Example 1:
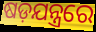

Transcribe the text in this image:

ଷଡ଼ଯନ୍ତ୍ରରେ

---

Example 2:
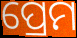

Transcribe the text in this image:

ପ୍ରେମ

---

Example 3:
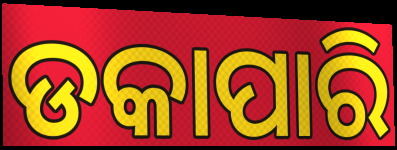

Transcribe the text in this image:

ଡକାପାରି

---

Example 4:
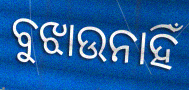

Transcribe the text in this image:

ବୁଝାଉନାହିଁ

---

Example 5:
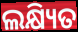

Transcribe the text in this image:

ଲକ୍ଷ୍ୟିତ